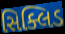
સિક્લિડ